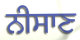
ਨੀਸਾਣ